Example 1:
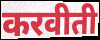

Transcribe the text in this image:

करवीती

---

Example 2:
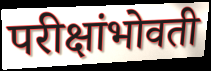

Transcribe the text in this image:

परीक्षांभोवती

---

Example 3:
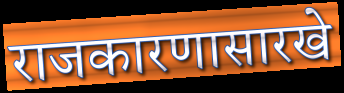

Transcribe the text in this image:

राजकारणासारखे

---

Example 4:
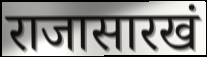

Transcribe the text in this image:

राजासारखं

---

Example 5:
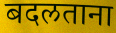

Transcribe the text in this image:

बदलताना